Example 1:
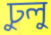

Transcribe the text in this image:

ঢুলু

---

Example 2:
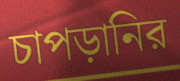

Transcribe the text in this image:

চাপড়ানির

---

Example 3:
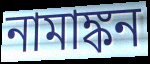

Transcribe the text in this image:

নামাঙ্কন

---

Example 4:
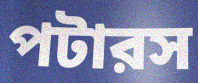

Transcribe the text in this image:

পটারস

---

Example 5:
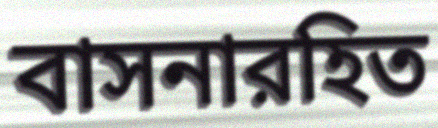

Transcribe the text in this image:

বাসনারহিত